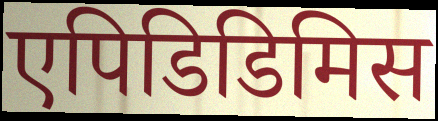
एपिडिडिमिस